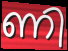
ണി